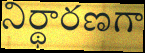
నిర్థారణగా